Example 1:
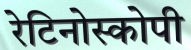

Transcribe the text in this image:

रेटिनोस्कोपी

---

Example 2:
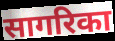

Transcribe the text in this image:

सागरिका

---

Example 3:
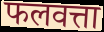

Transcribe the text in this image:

फलवत्ता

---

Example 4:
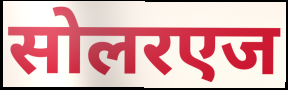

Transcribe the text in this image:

सोलरएज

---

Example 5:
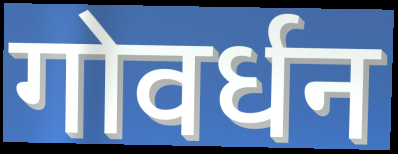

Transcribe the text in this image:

गोवर्धन